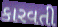
કારવતી